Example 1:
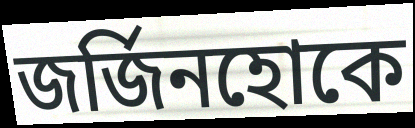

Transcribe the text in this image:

জর্জিনহোকে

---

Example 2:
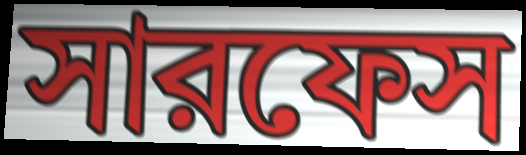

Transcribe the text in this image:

সারফেস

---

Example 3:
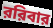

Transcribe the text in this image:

ররিবার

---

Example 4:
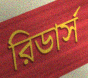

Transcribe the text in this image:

রিডার্স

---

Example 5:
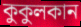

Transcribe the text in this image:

কুকুলকান